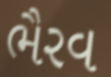
ભૈરવ